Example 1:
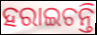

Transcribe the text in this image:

ହରାଇଚନ୍ତି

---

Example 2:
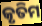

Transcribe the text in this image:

କୃତିମ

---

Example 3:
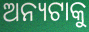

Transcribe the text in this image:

ଅନ୍ୟଟାକୁ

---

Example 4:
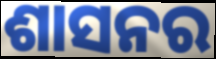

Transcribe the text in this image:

ଶାସନର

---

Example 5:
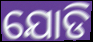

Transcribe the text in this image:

ଯୋଡି